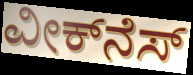
ವೀಕ್‌ನೆಸ್